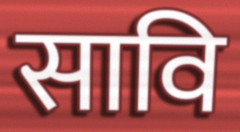
सावि